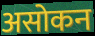
असोकन